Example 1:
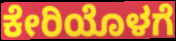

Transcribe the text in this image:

ಕೇರಿಯೊಳಗೆ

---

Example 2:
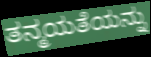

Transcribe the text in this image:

ತನ್ಮಯತೆಯನ್ನು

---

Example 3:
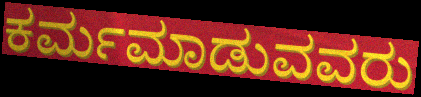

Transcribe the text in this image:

ಕರ್ಮಮಾಡುವವರು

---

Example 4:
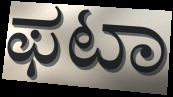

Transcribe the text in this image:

ಫಟಾ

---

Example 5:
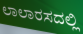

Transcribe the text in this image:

ಲಾಲಾರಸದಲ್ಲಿ